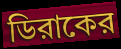
ডিরাকের